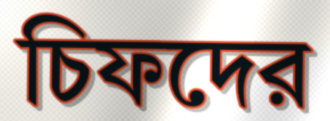
চিফদের